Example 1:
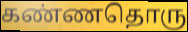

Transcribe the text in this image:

கண்ணதொரு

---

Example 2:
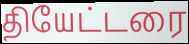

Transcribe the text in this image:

தியேட்டரை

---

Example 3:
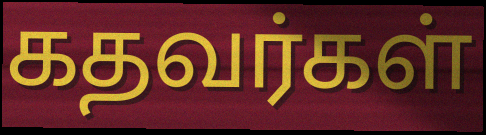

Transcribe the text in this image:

கதவர்கள்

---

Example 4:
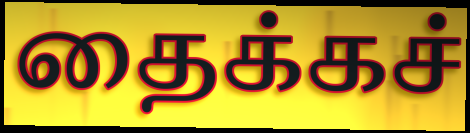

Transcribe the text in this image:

தைக்கச்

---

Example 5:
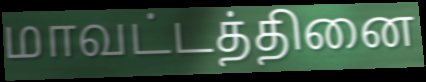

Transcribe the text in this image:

மாவட்டத்தினை